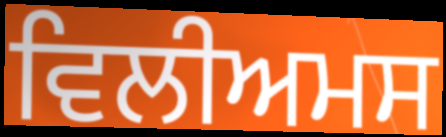
ਵਿਲੀਅਮਸ